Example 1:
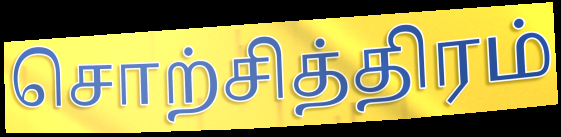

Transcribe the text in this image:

சொற்சித்திரம்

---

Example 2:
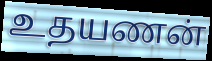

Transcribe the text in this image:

உதயணன்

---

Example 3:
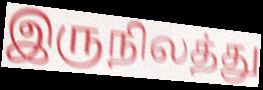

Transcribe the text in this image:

இருநிலத்து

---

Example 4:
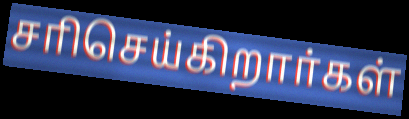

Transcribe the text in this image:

சரிசெய்கிறார்கள்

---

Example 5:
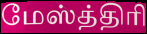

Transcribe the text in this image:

மேஸ்த்திரி